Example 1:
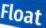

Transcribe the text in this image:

Float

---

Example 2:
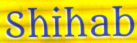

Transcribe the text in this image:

Shihab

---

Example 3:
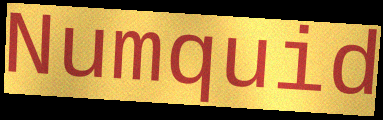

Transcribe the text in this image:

Numquid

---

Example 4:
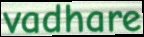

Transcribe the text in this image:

vadhare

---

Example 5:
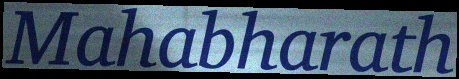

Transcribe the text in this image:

Mahabharath